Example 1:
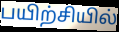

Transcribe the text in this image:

பயிற்சியில்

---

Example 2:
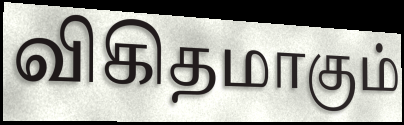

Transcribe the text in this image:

விகிதமாகும்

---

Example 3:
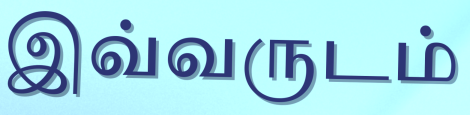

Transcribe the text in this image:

இவ்வருடம்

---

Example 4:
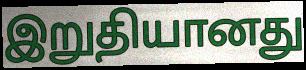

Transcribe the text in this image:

இறுதியானது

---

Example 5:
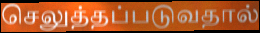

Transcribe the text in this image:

செலுத்தப்படுவதால்